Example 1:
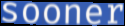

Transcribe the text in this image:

sooner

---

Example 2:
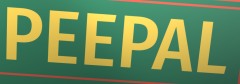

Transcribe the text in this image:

PEEPAL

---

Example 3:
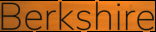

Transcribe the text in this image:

Berkshire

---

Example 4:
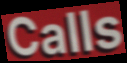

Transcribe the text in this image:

Calls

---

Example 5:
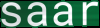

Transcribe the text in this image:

saar